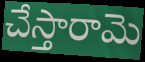
చేస్తారామె